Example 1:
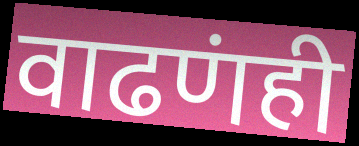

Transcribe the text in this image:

वाढणंही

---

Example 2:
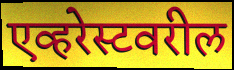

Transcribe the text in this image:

एव्हरेस्टवरील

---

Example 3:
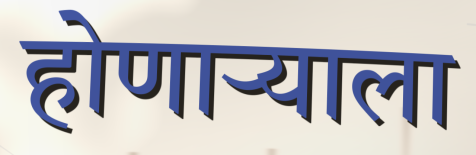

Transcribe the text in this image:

होणाऱ्याला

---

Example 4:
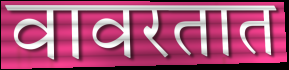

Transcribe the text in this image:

वावरतात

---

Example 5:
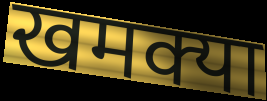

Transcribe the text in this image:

खमक्या